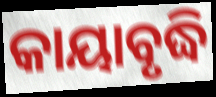
କାୟାବୃଦ୍ଧି